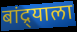
बांद्र्याला